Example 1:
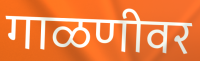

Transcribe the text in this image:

गाळणीवर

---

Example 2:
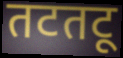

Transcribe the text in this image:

तटतटू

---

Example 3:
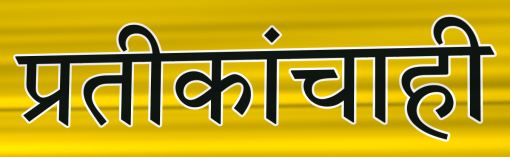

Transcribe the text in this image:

प्रतीकांचाही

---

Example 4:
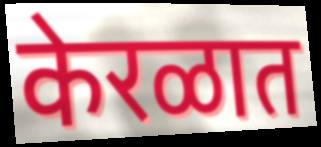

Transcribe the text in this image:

केरळात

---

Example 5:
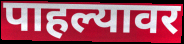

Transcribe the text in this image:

पाहल्यावर